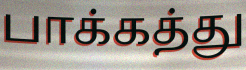
பாக்கத்து